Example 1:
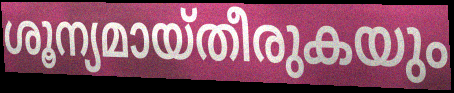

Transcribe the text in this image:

ശൂന്യമായ്തീരുകയും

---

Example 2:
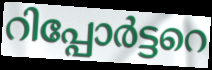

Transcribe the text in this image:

റിപ്പോർട്ടറെ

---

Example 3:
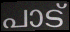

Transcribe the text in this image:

പാട്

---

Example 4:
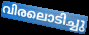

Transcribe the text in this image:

വിരലൊടിച്ചു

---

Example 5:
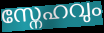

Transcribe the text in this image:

സ്നേഹവും